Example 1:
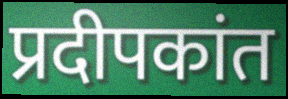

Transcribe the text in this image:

प्रदीपकांत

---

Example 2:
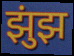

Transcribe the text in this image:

झुंझ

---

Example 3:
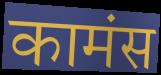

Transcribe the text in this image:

कामंस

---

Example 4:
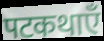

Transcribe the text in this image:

पटकथाएँ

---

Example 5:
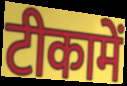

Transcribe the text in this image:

टीकामें